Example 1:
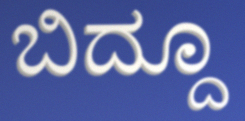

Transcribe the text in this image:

ಬಿದ್ದೂ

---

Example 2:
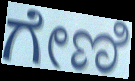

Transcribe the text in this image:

ಗೇಣಿ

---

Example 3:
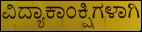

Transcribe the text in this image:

ವಿದ್ಯಾಕಾಂಕ್ಷಿಗಳಾಗಿ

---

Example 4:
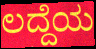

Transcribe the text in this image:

ಲದ್ದೆಯ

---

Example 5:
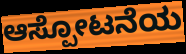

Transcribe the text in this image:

ಆಸ್ಪೋಟನೆಯ